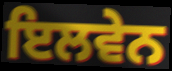
ਇਲਵੇਨ